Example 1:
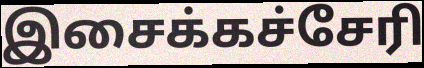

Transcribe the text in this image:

இசைக்கச்சேரி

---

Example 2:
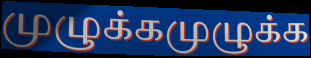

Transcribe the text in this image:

முழுக்கமுழுக்க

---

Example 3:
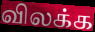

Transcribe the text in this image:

விலக்க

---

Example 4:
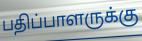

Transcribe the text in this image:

பதிப்பாளருக்கு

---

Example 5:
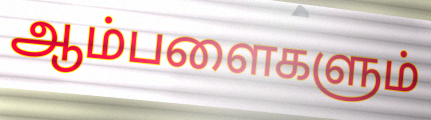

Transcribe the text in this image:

ஆம்பளைகளும்